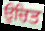
ਉਚਿਤ